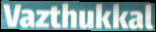
Vazthukkal